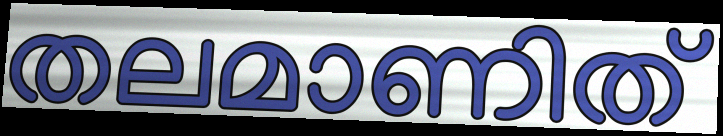
തലമാണിത്